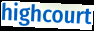
highcourt